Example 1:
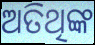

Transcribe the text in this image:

ଅତିଥିଙ୍କ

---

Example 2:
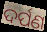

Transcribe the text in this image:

ଦର୍ପଣ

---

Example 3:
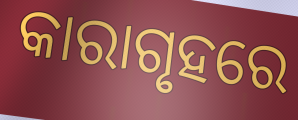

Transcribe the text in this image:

କାରାଗୃହରେ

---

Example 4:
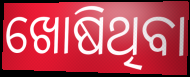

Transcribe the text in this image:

ଖୋଷିଥିବା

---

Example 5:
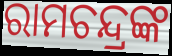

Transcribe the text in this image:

ରାମଚନ୍ଦ୍ରଙ୍କ